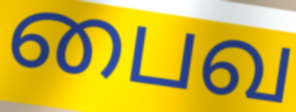
பைவ